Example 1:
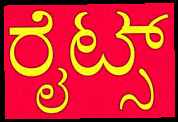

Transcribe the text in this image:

ರೈಟ್ಸ್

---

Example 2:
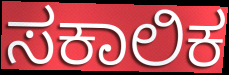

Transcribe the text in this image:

ಸಕಾಲಿಕ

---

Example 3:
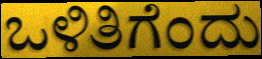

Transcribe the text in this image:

ಒಳಿತಿಗೆಂದು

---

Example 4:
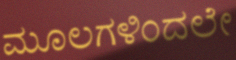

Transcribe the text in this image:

ಮೂಲಗಳಿಂದಲೇ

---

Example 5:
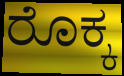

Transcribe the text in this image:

ರೊಕ್ಕ